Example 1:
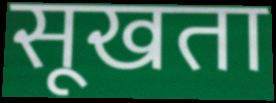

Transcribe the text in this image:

सूखता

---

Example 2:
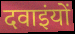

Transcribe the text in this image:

दवाइंयों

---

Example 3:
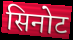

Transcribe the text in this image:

सिनोट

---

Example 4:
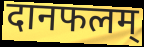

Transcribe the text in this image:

दानफलम्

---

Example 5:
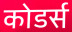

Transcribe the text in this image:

कोडर्स